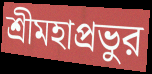
শ্রীমহাপ্রভুর